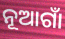
ନୂଆଗାଁ